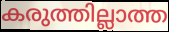
കരുത്തില്ലാത്ത